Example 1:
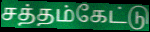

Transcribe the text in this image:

சத்தம்கேட்டு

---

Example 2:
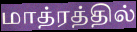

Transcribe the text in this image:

மாத்ரத்தில்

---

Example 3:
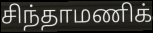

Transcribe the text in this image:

சிந்தாமணிக்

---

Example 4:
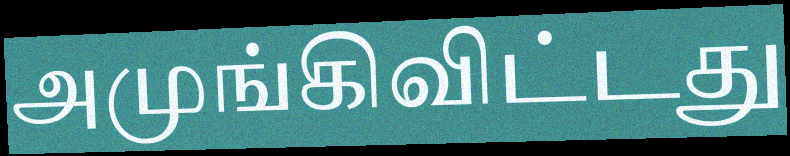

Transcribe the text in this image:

அமுங்கிவிட்டது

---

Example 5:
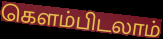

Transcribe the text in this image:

கெளம்பிடலாம்